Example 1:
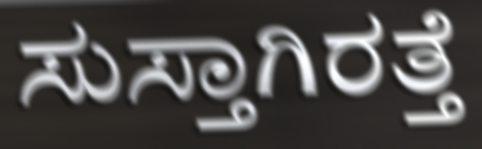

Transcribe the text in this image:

ಸುಸ್ತಾಗಿರತ್ತೆ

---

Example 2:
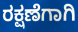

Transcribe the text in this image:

ರಕ್ಷಣೆಗಾಗಿ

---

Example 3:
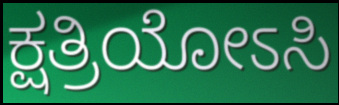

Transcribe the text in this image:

ಕ್ಷತ್ರಿಯೋಽಸಿ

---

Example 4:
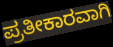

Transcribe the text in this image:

ಪ್ರತೀಕಾರವಾಗಿ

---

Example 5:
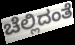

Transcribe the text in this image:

ಚೆಲ್ಲಿದಂತೆ